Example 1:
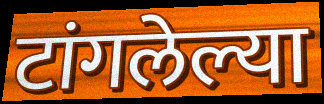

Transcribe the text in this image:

टांगलेल्या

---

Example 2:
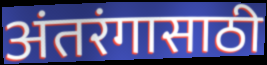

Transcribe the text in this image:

अंतरंगासाठी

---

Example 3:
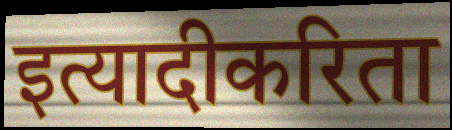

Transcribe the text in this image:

इत्यादीकरिता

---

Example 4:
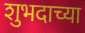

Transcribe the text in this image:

शुभदाच्या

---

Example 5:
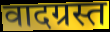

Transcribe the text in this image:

वादग्रस्त